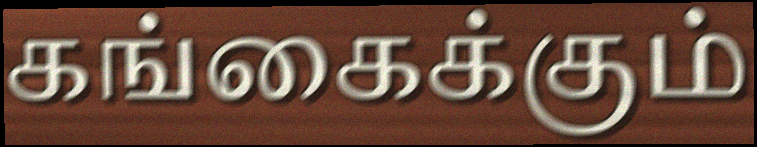
கங்கைக்கும்